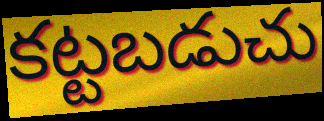
కట్టబడుచు